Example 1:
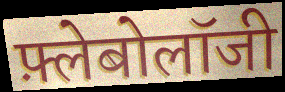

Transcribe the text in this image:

फ़्लेबोलॉजी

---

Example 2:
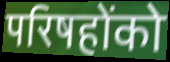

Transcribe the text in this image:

परिषहोंको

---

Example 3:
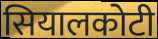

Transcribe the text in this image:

सियालकोटी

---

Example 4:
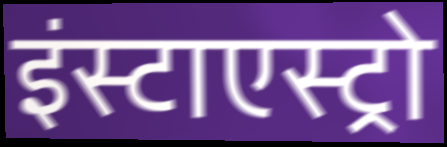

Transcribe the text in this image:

इंस्टाएस्ट्रो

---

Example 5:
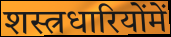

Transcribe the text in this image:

शस्त्रधारियोंमें